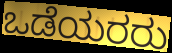
ಒಡೆಯರರು